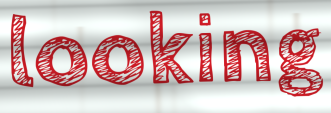
looking